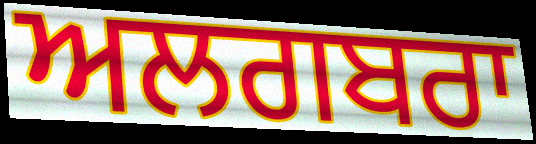
ਅਲਗਬਰਾ